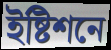
ইষ্টিশনে